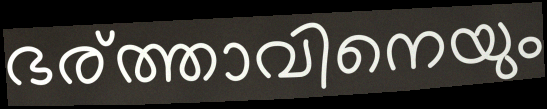
ഭര്ത്താവിനെയും